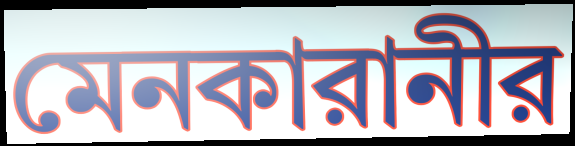
মেনকারানীর